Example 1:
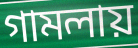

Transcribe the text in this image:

গামলায়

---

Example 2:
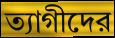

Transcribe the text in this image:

ত্যাগীদের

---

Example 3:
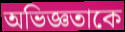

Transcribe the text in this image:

অভিজ্ঞতাকে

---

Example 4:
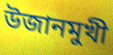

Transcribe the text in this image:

উজানমুখী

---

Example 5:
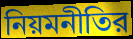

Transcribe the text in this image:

নিয়মনীতির